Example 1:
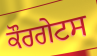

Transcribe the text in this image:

ਕੌਰਗੇਟਸ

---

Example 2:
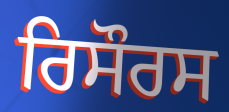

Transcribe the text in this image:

ਰਿਸੌਰਸ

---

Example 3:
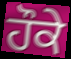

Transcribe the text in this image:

ਹੌਕੇ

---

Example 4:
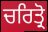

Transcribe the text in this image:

ਚਰਿਤ੍ਰੋ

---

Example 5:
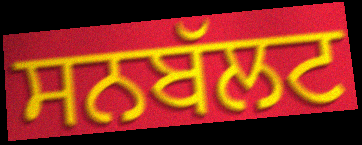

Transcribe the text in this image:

ਸਨਬੱਲਟ